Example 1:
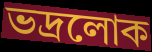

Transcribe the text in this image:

ভদ্রলোক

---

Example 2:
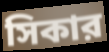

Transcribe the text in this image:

সিকার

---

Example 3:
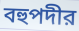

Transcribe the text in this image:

বহুপদীর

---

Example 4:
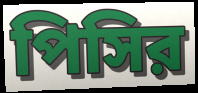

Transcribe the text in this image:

পিসির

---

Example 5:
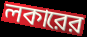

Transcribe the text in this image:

লকারের